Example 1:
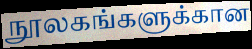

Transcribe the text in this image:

நூலகங்களுக்கான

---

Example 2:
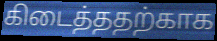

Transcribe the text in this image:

கிடைத்ததற்காக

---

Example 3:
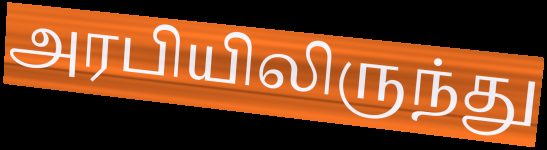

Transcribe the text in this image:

அரபியிலிருந்து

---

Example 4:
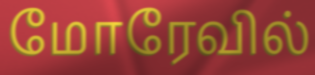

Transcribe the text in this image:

மோரேவில்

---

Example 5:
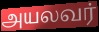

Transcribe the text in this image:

அயலவர்